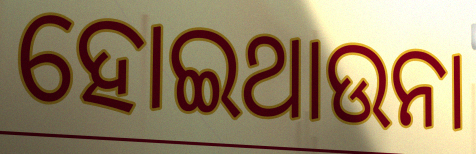
ହୋଇଥାଉନା